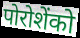
पोरोशेंको